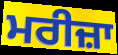
ਮਰੀਜ਼ਾ